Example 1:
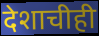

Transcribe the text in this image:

देशाचीही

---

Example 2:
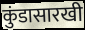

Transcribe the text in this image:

कुंडासारखी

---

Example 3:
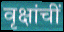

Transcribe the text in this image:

वृक्षांचीं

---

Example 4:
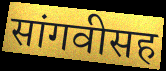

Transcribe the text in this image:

सांगवीसह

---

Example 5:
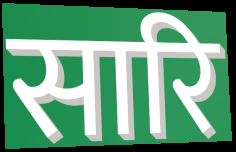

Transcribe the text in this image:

सारि